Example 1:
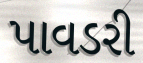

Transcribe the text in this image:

પાવડરી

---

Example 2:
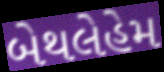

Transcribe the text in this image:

બેથલેહેમ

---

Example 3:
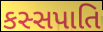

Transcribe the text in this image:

કસ્સપાતિ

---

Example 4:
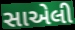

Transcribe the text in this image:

સાએલી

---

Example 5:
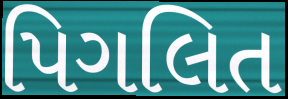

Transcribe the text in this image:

પિગલિત